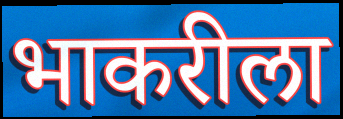
भाकरीला